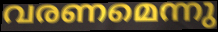
വരണമെന്നു